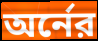
অর্নের